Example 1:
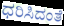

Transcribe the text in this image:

ಧರಿಸಿದಂತೆ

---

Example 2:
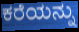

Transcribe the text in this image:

ಕರೆಯನ್ನು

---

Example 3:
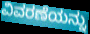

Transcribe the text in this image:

ವಿವರಣೆಯನ್ನು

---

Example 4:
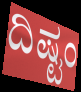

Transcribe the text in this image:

ದಿಷ್ಟಂ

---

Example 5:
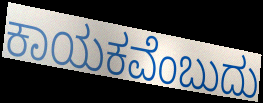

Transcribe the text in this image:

ಕಾಯಕವೆಂಬುದು